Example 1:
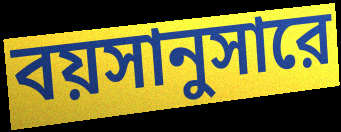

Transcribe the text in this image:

বয়সানুসারে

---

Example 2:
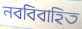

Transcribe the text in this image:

নববিবাহিত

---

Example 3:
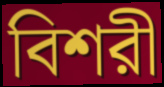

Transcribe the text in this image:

বিশরী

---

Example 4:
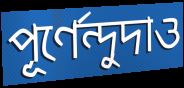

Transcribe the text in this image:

পূর্ণেন্দুদাও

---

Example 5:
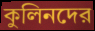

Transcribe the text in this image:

কুলিনদের